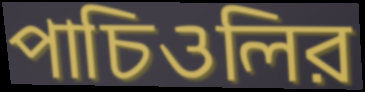
পাচিওলির